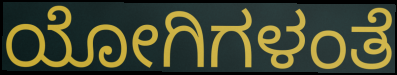
ಯೋಗಿಗಳಂತೆ